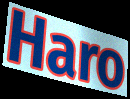
Haro